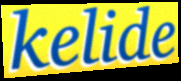
kelide